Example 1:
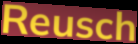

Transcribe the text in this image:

Reusch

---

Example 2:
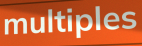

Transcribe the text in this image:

multiples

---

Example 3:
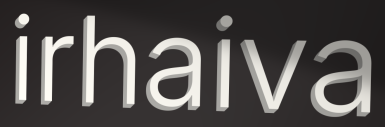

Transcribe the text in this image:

irhaiva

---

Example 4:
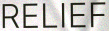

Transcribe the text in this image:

RELIEF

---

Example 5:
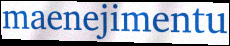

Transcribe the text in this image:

maenejimentu